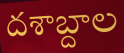
దశాబ్దాల